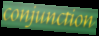
conjunction